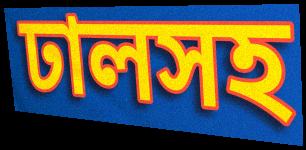
ঢালসহ